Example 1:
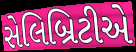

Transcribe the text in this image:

સેલિબ્રિટીએ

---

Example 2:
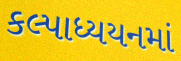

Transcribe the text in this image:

કલ્પાધ્યયનમાં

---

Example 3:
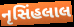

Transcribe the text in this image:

નૃસિંહલાલ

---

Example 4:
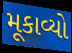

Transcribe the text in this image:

મૂકાવ્યો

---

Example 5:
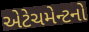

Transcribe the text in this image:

એટેચમેન્ટનો